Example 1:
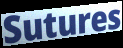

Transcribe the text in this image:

Sutures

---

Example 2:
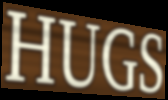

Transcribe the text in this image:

HUGS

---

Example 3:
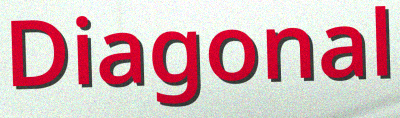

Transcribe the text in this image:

Diagonal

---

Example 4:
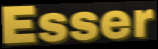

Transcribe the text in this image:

Esser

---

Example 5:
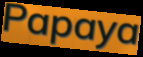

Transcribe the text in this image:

Papaya